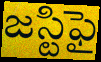
జస్టిఫై